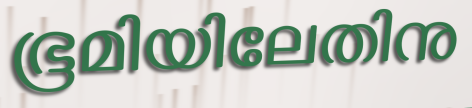
ഭൂമിയിലേതിനു